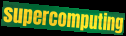
supercomputing